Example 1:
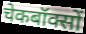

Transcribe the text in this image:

चेकबॉक्सों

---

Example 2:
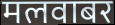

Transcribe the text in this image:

मलवाबर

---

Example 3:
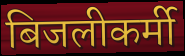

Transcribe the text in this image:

बिजलीकर्मी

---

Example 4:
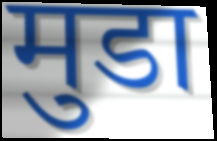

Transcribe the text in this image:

मुडा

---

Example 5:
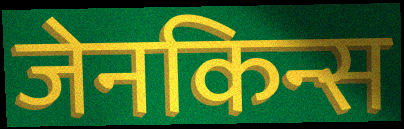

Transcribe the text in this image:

जेनकिन्स